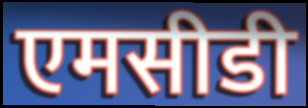
एमसीडी